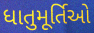
ધાતુમૂર્તિઓ